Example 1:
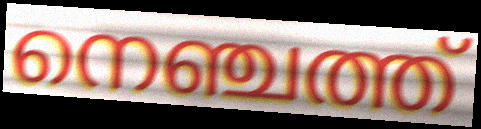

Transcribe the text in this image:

നെഞ്ചത്ത്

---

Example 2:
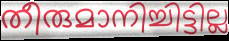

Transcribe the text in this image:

തീരുമാനിച്ചിട്ടില്ല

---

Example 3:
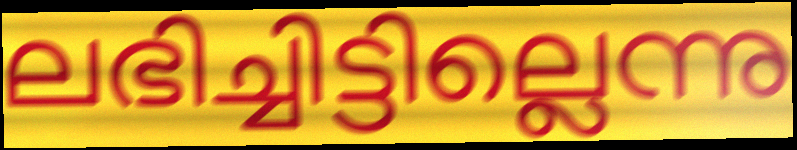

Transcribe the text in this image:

ലഭിച്ചിട്ടില്ലെന്നു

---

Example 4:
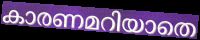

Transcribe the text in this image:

കാരണമറിയാതെ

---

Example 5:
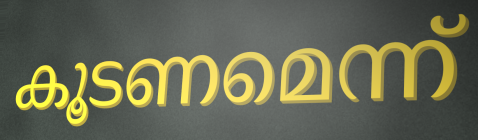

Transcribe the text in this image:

കൂടണമെന്ന്